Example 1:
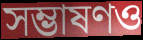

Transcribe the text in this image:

সম্ভাষণও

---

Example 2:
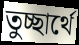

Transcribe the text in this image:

তুচ্ছার্থে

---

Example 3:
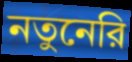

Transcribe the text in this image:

নতুনেরি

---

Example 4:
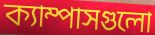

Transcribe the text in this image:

ক্যাম্পাসগুলো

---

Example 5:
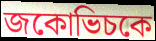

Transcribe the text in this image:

জকোভিচকে